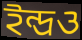
ইন্দ্রও